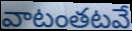
వాటంతటవే